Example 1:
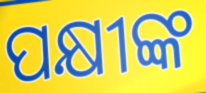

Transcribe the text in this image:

ପକ୍ଷୀଙ୍କ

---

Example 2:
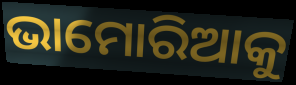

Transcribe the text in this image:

ଭାମୋରିଆକୁ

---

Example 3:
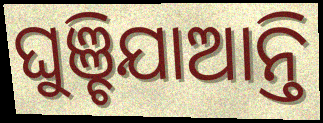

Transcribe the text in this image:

ଘୁଞ୍ଚିଯାଆନ୍ତି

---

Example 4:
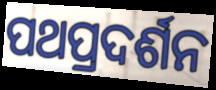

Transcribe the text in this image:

ପଥପ୍ରଦର୍ଶନ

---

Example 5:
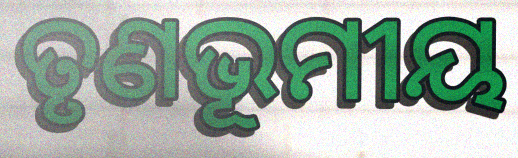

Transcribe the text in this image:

ତୃଣଭୂମୀୟ